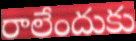
రాలేందుకు